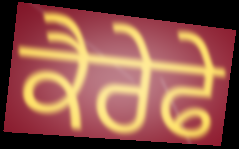
ਕੈਰੇਫੇ